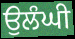
ਉਲੰਘੀ